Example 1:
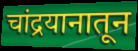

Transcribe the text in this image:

चांद्रयानातून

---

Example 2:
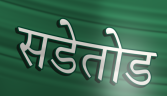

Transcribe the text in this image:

सडेतोड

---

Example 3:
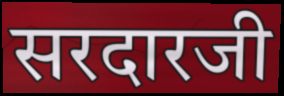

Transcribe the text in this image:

सरदारजी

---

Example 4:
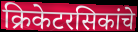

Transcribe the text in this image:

क्रिकेटरसिकांचे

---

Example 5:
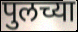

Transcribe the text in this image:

पुलच्या